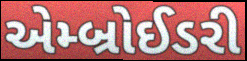
એમ્બ્રોઈડરી